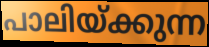
പാലിയ്ക്കുന്ന